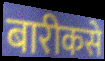
बारीकसे